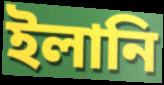
ইলানি